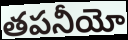
తపనీయో